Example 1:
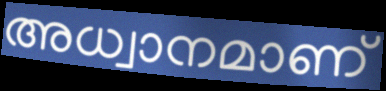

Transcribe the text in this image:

അധ്വാനമാണ്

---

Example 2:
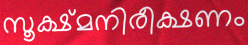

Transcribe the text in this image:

സൂക്ഷ്മനിരീക്ഷണം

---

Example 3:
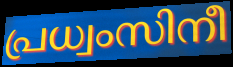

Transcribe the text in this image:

പ്രധ്വംസിനീ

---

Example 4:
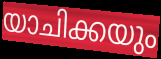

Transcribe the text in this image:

യാചിക്കയും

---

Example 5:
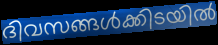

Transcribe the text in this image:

ദിവസങ്ങൾക്കിടയിൽ